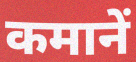
कमानें